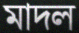
মাদল